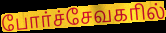
போர்ச்சேவகரில்